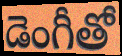
డెంగీతో